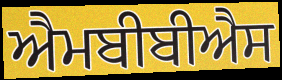
ਐਮਬੀਬੀਐਸ